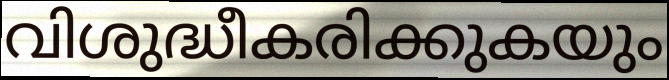
വിശുദ്ധീകരിക്കുകയും